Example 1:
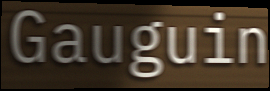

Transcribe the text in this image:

Gauguin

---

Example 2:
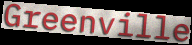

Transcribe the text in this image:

Greenville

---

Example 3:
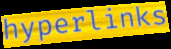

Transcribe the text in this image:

hyperlinks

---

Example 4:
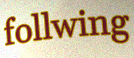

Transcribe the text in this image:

follwing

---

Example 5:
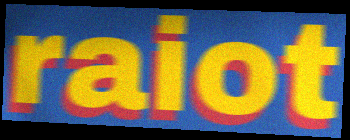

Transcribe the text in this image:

raiot